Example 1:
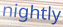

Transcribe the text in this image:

nightly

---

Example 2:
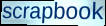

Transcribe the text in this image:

scrapbook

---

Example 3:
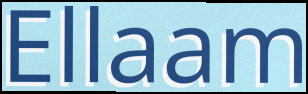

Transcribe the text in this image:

Ellaam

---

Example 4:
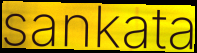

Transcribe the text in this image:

sankata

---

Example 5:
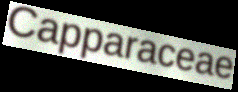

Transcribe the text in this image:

Capparaceae